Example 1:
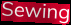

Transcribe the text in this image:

Sewing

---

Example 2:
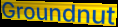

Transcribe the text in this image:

Groundnut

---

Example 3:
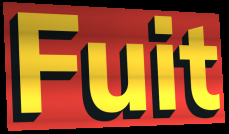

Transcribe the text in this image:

Fuit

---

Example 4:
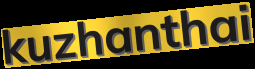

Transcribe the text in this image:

kuzhanthai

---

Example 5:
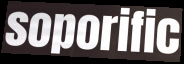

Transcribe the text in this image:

soporific